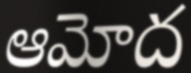
ఆమోద